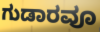
ಗುಡಾರವೂ